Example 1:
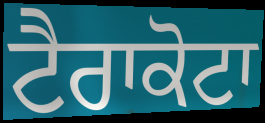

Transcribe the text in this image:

ਟੈਰਾਕੋਟਾ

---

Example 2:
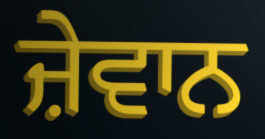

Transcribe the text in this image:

ਜ਼ੇਵਾਨ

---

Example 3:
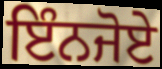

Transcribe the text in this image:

ਇੰਨਜੋਏ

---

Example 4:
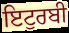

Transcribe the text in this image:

ਇਟੁਰਬੀ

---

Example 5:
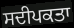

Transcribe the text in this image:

ਸਦੀਪਕਤਾ